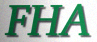
FHA